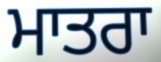
ਮਾਤਰਾ